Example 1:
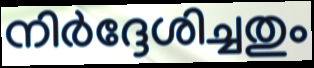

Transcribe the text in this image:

നിർദ്ദേശിച്ചതും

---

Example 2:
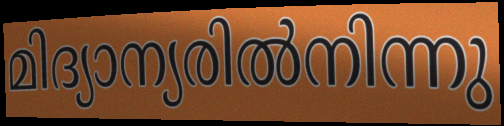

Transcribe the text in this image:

മിദ്യാന്യരിൽനിന്നു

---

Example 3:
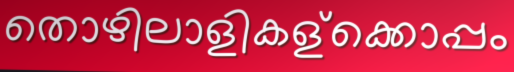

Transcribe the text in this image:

തൊഴിലാളികള്ക്കൊപ്പം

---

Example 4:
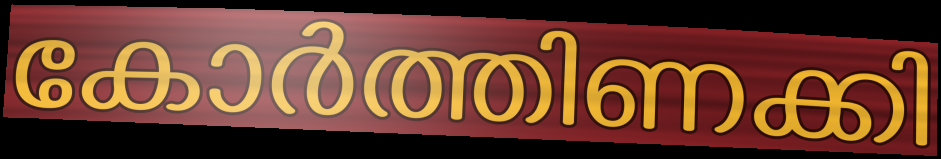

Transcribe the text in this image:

കോർത്തിണക്കി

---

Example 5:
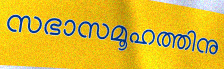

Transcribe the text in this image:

സഭാസമൂഹത്തിനു